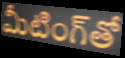
మీటింగ్‌తో